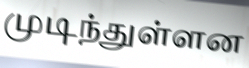
முடிந்துள்ளன